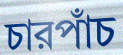
চারপাঁচ